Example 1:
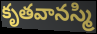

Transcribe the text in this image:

కృతవానస్మి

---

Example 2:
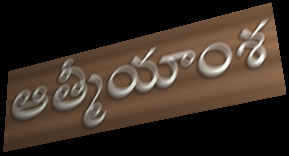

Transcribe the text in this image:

ఆత్మీయాంశ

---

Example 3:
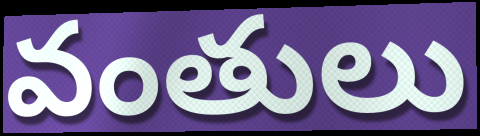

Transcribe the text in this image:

వంతులు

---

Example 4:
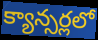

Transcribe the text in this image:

క్యాన్సర్లలో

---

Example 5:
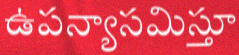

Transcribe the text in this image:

ఉపన్యాసమిస్తూ